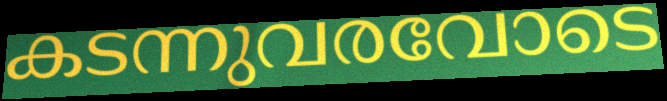
കടന്നുവരവോടെ